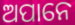
ଅପାନେ